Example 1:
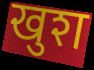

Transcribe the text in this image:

खुश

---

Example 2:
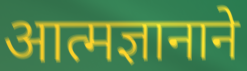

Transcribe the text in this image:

आत्मज्ञानाने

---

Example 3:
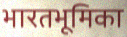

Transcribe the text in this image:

भारतभूमिका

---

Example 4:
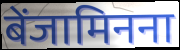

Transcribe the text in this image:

बेंजामिनना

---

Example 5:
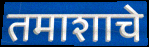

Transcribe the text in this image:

तमाशाचे